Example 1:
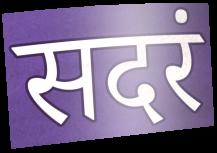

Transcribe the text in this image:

सदरं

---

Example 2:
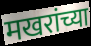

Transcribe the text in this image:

मखरांच्या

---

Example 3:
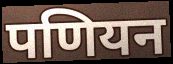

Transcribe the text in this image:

पणियन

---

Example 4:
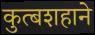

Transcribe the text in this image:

कुत्बशहाने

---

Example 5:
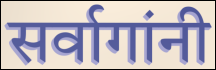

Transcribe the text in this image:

सर्वागांनी